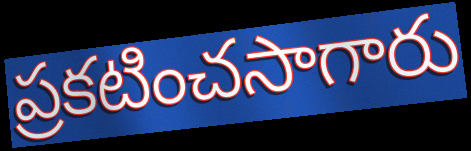
ప్రకటించసాగారు